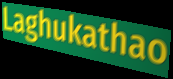
Laghukathao